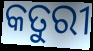
କତୁରୀ